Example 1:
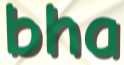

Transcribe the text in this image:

bha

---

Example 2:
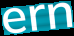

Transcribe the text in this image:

ern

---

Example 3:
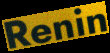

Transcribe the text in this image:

Renin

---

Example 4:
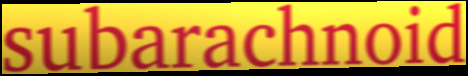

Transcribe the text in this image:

subarachnoid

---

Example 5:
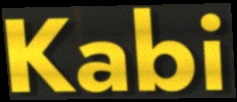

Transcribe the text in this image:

Kabi